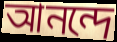
আনন্দে